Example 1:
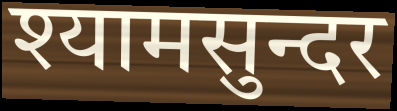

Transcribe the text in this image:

श्यामसुन्दर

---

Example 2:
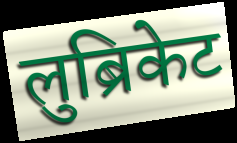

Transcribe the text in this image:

लुब्रिकेट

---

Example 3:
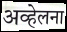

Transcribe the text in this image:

अव्हेलना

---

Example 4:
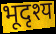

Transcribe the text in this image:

भूदृश्य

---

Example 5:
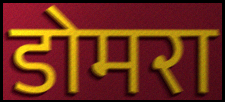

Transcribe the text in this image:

डोमरा